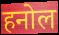
हनोल